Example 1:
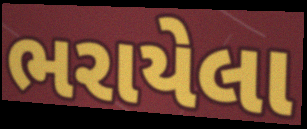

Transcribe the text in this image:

ભરાયેલા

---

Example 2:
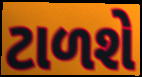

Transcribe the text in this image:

ટાળશે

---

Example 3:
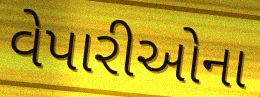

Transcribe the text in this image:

વેપારીઓના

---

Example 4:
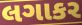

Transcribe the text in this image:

લગાકર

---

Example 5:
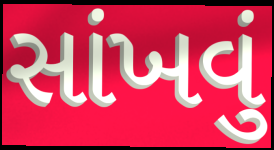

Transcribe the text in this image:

સાંખવું